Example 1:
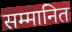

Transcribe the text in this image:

सम्मानित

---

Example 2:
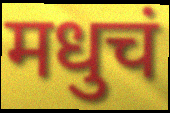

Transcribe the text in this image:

मधुचं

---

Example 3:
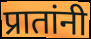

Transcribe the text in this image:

प्रातांनी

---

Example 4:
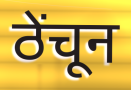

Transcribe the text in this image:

ठेंचून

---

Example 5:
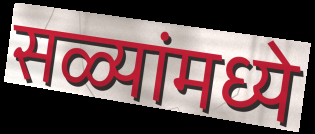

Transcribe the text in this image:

सळ्यांमध्ये